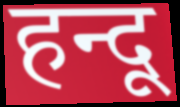
हन्दू